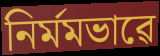
নিৰ্মমভাৱে